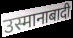
उस्मानाबादी